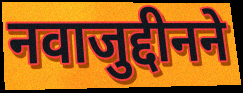
नवाजुद्दीनने